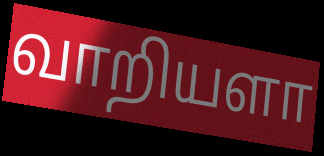
வாறியளா